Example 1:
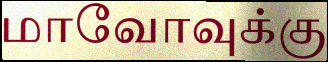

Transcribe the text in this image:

மாவோவுக்கு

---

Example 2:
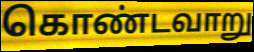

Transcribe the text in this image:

கொண்டவாறு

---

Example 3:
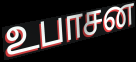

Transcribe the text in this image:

உபாசன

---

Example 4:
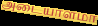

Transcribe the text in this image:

அடையாளமா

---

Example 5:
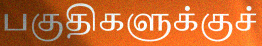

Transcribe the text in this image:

பகுதிகளுக்குச்